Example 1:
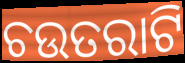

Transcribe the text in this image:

ଚଉତରାଟି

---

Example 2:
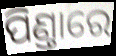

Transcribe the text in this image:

ପିଣ୍ତାରେ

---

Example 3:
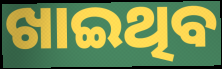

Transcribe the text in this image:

ଖାଇଥିବ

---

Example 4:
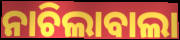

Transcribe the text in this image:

ନାଚିଲାବାଲା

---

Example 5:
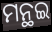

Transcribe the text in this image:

ମନ୍ଥଇ